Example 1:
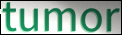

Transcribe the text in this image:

tumor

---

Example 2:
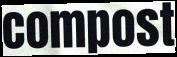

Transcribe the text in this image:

compost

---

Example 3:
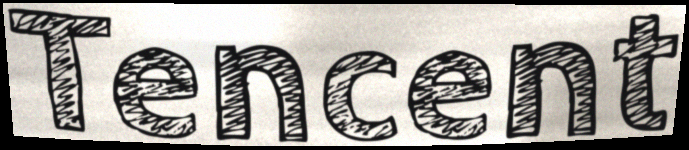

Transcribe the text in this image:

Tencent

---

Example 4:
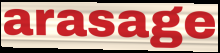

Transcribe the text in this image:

arasage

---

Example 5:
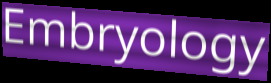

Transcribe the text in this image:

Embryology